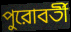
পুরোবর্তী